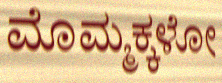
ಮೊಮ್ಮಕ್ಕಳೋ